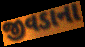
જીવડાના